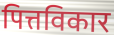
पित्तविकार